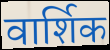
वार्शिक